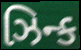
ઝિન્ક